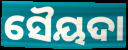
ସୈୟଦା